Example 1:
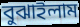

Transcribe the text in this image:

বুঝাইলাম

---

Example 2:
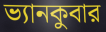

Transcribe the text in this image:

ভ্যানকুবার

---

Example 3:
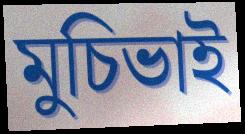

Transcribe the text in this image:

মুচিভাই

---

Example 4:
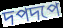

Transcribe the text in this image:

দপদপে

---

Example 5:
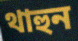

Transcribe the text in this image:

থাহুন